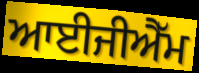
ਆਈਜੀਐੱਮ